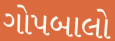
ગોપબાલો